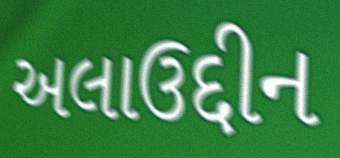
અલાઉદ્દીન